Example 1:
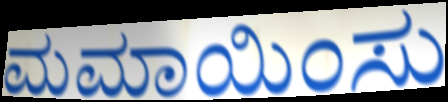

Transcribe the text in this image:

ಮಮಾಯಿಂಸು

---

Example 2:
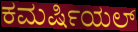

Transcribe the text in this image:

ಕಮರ್ಷಿಯಲ್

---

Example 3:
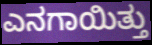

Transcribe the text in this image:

ಎನಗಾಯಿತ್ತು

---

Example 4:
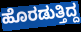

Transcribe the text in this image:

ಹೊರಡುತ್ತಿದ್ದ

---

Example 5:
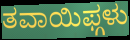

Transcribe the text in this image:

ತವಾಯಿಫ್ಗಳು